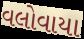
વલોવાયા